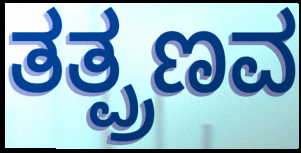
ತತ್ಪ್ರಣವ